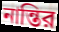
নান্তির